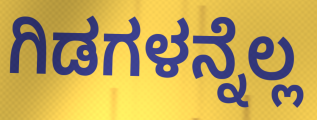
ಗಿಡಗಳನ್ನೆಲ್ಲ